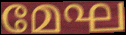
മേഘ